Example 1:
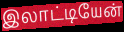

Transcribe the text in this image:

இலாட்டியேன்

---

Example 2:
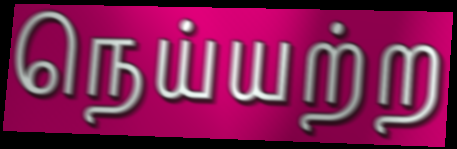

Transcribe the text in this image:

நெய்யற்ற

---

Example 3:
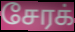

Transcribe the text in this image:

சேரக்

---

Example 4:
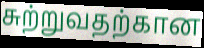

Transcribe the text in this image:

சுற்றுவதற்கான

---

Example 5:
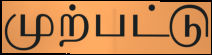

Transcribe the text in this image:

முற்பட்டு